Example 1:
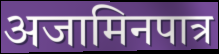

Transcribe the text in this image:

अजामिनपात्र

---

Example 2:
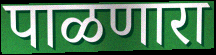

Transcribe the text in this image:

पाळणारा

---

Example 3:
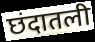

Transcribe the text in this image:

छंदातली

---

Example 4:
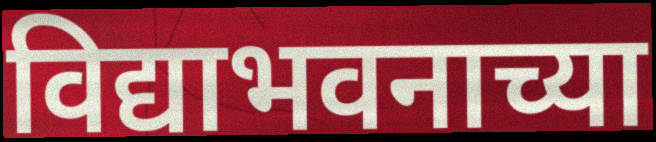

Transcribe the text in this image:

विद्याभवनाच्या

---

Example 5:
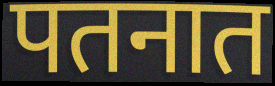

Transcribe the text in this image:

पतनात